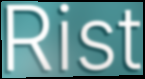
Rist